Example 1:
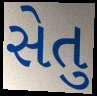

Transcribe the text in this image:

સેતુ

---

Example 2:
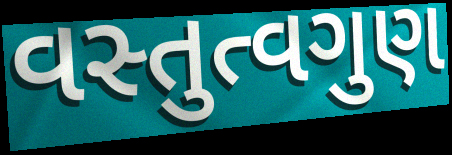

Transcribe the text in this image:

વસ્તુત્વગુણ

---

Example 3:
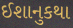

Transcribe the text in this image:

ઈશાનુકથા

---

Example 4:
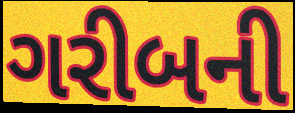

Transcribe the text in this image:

ગરીબની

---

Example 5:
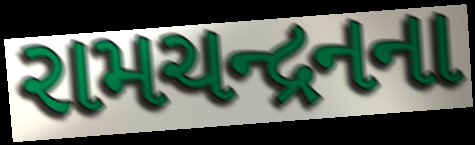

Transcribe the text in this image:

રામચન્દ્રનના